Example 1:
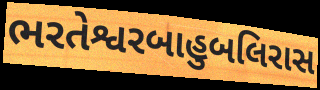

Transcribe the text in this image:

ભરતેશ્વરબાહુબલિરાસ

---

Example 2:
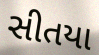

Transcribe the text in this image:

સીતયા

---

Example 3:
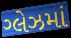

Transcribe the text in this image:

ગ્લેઝમાં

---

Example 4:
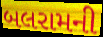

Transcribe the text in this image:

બલરામની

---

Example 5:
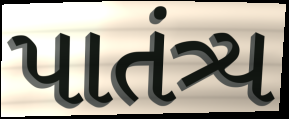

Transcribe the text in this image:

પાતંત્ર્ય